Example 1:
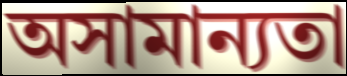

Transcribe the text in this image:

অসামান্যতা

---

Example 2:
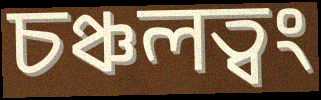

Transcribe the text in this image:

চঞ্চলত্বং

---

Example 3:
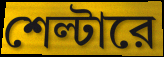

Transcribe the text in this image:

শেল্টারে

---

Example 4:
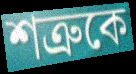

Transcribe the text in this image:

শত্রুকে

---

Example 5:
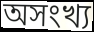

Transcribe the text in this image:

অসংখ্য